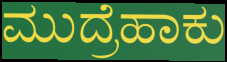
ಮುದ್ರೆಹಾಕು